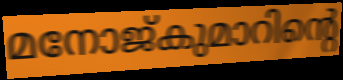
മനോജ്കുമാറിന്റെ